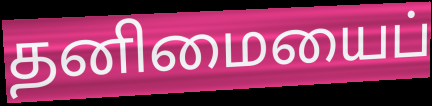
தனிமையைப்